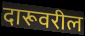
दारूवरील